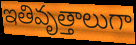
ఇతివృత్తాలుగా